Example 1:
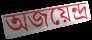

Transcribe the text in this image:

অজয়েন্দ্র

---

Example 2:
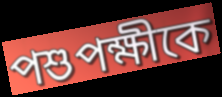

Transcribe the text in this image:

পশুপক্ষীকে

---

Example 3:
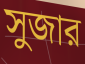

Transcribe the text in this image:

সুজার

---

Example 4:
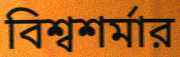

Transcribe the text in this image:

বিশ্বশর্মার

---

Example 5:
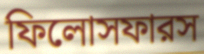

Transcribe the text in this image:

ফিলোসফারস